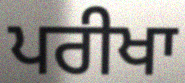
ਪਰੀਖਾ